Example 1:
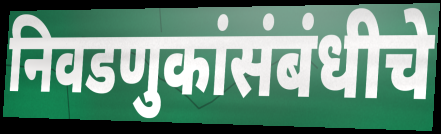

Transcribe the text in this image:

निवडणुकांसंबंधीचे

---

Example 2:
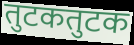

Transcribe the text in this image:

तुटकतुटक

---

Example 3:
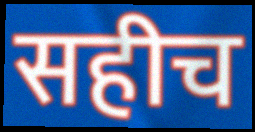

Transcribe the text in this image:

सहीच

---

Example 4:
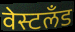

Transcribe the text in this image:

वेस्टलँड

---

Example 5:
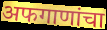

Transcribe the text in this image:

अफगाणांचा